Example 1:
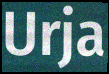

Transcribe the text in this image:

Urja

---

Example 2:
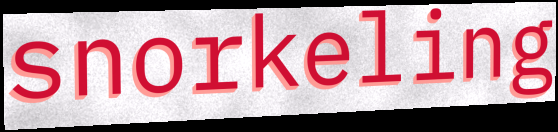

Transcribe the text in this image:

snorkeling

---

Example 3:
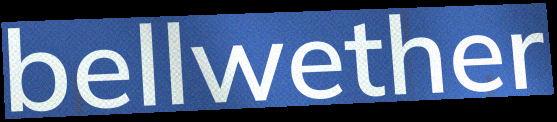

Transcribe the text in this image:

bellwether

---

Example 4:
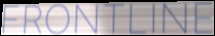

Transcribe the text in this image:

FRONTLINE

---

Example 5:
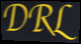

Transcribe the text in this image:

DRL